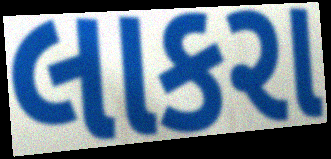
લાકરા